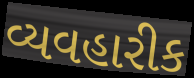
વ્યવહારીક